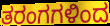
ತರಂಗಗಳಿಂದ